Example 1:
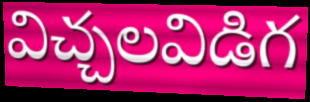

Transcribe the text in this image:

విచ్చలవిడిగ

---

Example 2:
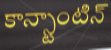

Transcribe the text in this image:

కాన్స్టాంటిన్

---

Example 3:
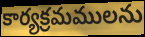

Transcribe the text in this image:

కార్యక్రమములను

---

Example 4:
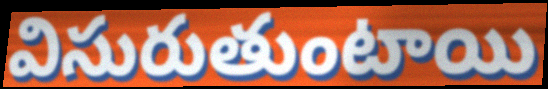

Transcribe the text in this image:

విసురుతుంటాయి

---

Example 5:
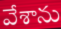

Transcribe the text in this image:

వేశాను